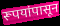
रूपयांपासून